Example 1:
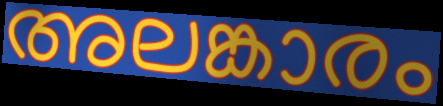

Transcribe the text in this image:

അലങ്കാരം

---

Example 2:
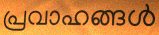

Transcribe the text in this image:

പ്രവാഹങ്ങൾ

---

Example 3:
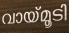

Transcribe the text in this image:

വായ്മൂടി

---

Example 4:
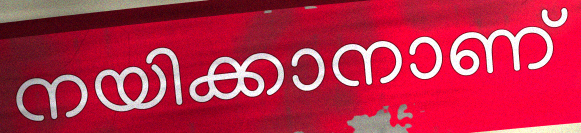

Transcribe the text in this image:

നയിക്കാനാണ്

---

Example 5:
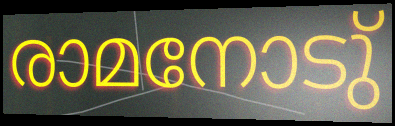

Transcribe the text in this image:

രാമനോടു്